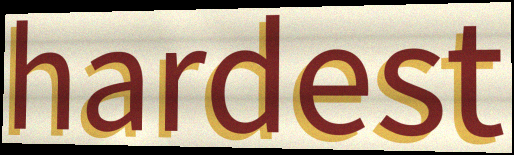
hardest